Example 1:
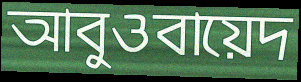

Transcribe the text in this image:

আবুওবায়েদ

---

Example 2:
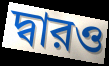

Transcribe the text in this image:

দ্বারও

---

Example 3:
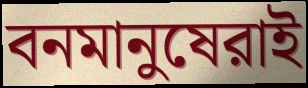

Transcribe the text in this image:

বনমানুষেরাই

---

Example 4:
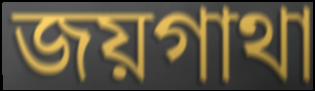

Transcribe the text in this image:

জয়গাথা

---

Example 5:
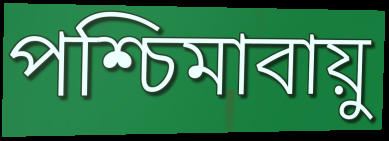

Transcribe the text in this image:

পশ্চিমাবায়ু